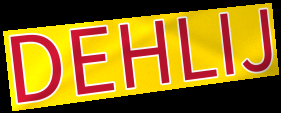
DEHLIJ